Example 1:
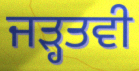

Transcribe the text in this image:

ਜੜ੍ਹਤਵੀ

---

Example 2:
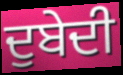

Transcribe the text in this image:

ਦੁਬੇਦੀ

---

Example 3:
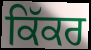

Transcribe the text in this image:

ਕਿੱਕਰ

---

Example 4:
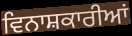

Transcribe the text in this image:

ਵਿਨਾਸ਼ਕਾਰੀਆਂ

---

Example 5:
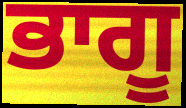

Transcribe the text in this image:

ਭਾਗੂ